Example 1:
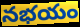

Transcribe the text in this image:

నభయం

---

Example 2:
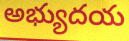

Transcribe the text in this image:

అభ్యుదయ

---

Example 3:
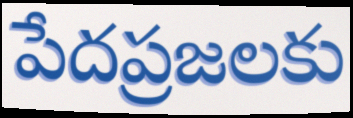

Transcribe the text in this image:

పేదప్రజలకు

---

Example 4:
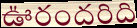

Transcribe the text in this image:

ఊరందరిది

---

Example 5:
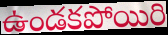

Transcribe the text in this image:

ఉండకపోయిరి